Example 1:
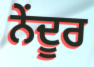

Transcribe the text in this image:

ਨੇਂਦੂਰ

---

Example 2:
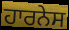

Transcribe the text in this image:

ਹਾਰਨੇਸ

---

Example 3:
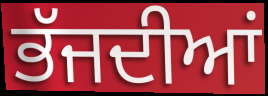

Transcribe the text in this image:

ਭੱਜਦੀਆਂ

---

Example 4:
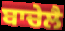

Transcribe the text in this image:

ਬਾਚੇਲੈ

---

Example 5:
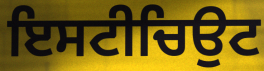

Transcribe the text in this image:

ਇਸਟੀਚਿਉਟ